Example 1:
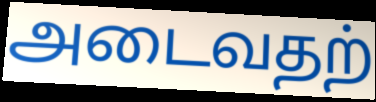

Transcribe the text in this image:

அடைவதற்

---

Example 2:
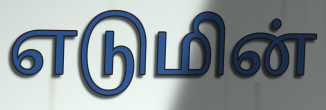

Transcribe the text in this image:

எடுமின்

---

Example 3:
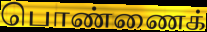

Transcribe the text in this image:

பொண்ணைக்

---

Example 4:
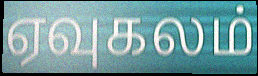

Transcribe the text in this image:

ஏவுகலம்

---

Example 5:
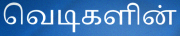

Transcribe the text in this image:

வெடிகளின்